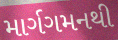
માર્ગગમનથી